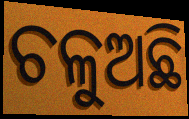
ଚଳୁଅଛି